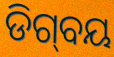
ଡିଗ୍‌ବୟ